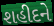
શહીદને